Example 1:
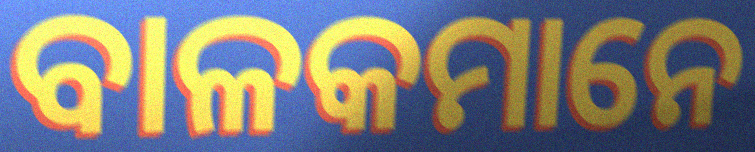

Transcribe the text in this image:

ବାଳକମାନେ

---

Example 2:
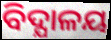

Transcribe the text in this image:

ବିଦ୍ଯାଳୟ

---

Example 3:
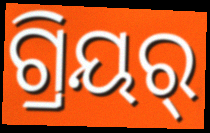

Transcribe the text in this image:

ଗ୍ରିୟର୍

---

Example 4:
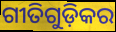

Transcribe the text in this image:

ଗୀତିଗୁଡ଼ିକର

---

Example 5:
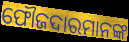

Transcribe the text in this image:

ଫୌଜଦାରମାନଙ୍କ